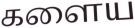
களைய